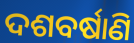
ଦଶବର୍ଷାଣି